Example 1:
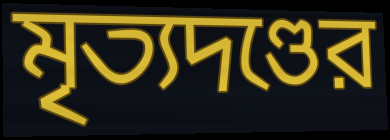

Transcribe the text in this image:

মৃত্যদণ্ডের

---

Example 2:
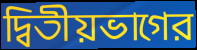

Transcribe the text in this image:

দ্বিতীয়ভাগের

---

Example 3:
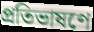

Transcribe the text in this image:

প্রতিভাষণে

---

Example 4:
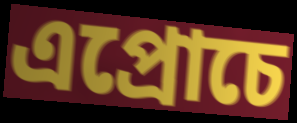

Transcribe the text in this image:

এপ্রোচে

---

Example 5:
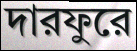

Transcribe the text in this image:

দারফুরে